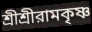
শ্রীশ্রীরামকৃষ্ণ